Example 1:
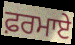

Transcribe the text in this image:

ਫ਼ਰਮਾਏ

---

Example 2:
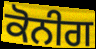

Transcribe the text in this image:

ਕੋਨੀਗ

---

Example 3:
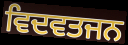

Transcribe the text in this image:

ਵਿਦਵਤਜਨ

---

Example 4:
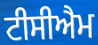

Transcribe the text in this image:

ਟੀਸੀਐਮ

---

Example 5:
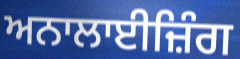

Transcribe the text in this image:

ਅਨਾਲਾਈਜ਼ਿੰਗ